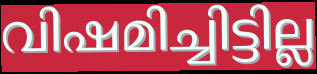
വിഷമിച്ചിട്ടില്ല